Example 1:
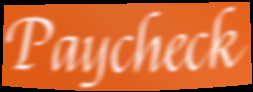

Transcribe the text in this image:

Paycheck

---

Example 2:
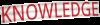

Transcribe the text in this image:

KNOWLEDGE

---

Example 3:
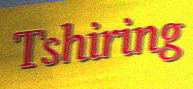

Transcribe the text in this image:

Tshiring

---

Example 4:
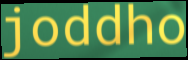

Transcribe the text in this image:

joddho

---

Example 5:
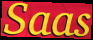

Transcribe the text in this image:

Saas